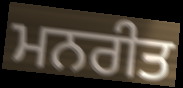
ਮਨਰੀਤ